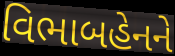
વિભાબહેનને